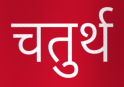
चतुर्थ